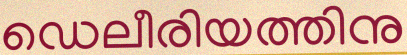
ഡെലീരിയത്തിനു